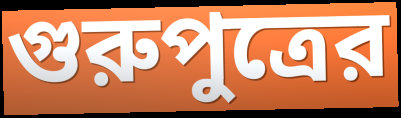
গুরুপুত্রের